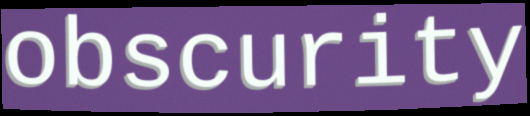
obscurity